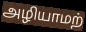
அழியாமற்